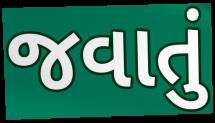
જવાતું